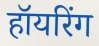
हॉयरिंग